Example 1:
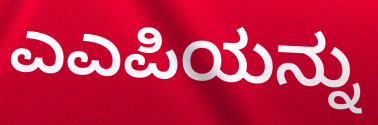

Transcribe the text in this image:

ಎಎಪಿಯನ್ನು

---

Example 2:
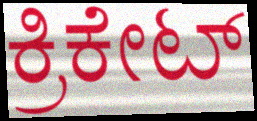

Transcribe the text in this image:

ಕ್ರಿಕೇಟ್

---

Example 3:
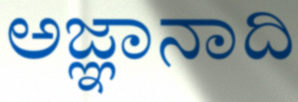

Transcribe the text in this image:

ಅಜ್ಞಾನಾದಿ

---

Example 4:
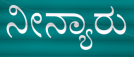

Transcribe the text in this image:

ನೀನ್ಯಾರು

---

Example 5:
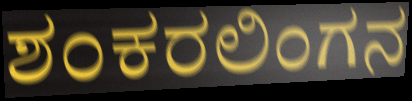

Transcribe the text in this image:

ಶಂಕರಲಿಂಗನ